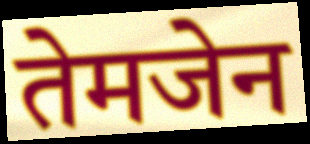
तेमजेन